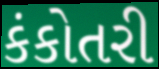
કંકોતરી